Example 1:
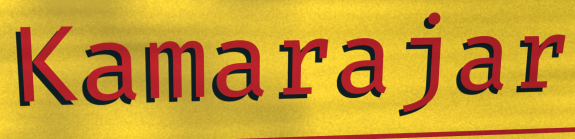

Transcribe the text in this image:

Kamarajar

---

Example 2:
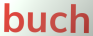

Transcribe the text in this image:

buch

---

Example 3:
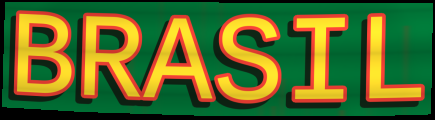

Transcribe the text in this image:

BRASIL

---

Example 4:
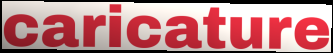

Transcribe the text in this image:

caricature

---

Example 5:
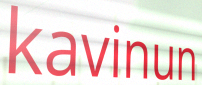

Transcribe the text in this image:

kavinun